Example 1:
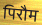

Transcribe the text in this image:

पिरौम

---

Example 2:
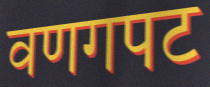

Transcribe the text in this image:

वणगपट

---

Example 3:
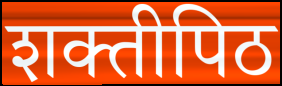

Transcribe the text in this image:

शक्तीपिठ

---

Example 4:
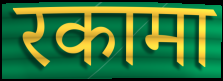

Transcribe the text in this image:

रकामा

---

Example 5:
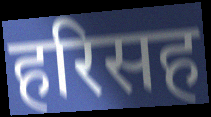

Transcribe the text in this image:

हरिसह